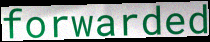
forwarded